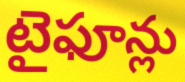
టైఫూన్లు